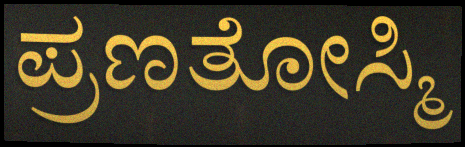
ಪ್ರಣತೋಸ್ಮಿ